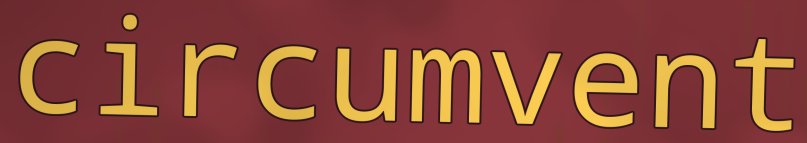
circumvent